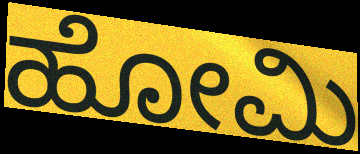
ಹೋಮಿ